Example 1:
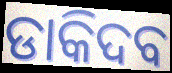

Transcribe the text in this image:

ଡାକିଦବ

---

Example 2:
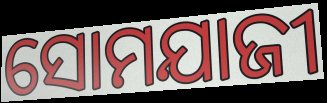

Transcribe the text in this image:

ସୋମଯାଜୀ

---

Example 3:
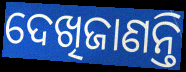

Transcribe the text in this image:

ଦେଖିଜାଣନ୍ତି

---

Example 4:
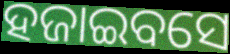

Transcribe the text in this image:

ହଜାଇବସେ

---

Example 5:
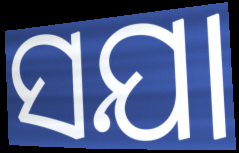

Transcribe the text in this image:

ସଯା